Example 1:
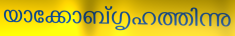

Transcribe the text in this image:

യാക്കോബ്ഗൃഹത്തിന്നു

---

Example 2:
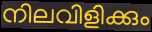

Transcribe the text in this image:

നിലവിളിക്കും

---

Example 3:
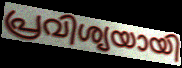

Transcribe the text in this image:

പ്രവിശ്യയായി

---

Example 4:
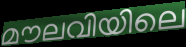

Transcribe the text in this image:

മൗലവിയിലെ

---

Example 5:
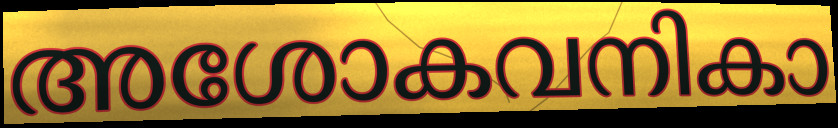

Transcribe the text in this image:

അശോകവനികാ